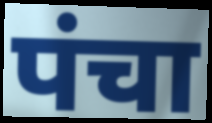
पंचा